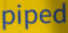
piped